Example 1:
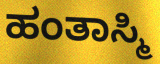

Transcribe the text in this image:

ಹಂತಾಸ್ಮಿ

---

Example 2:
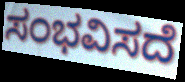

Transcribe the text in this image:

ಸಂಭವಿಸದೆ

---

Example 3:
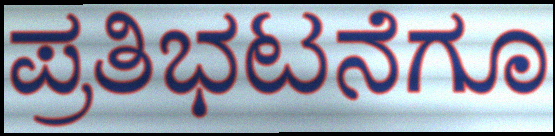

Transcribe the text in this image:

ಪ್ರತಿಭಟನೆಗೂ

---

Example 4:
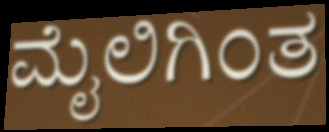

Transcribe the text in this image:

ಮೈಲಿಗಿಂತ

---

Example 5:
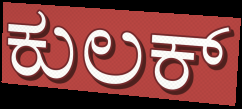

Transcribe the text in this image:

ಕುಲಕ್